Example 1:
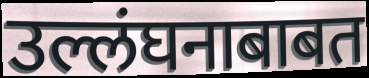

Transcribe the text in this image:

उल्लंघनाबाबत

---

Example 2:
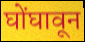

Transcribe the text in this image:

घोंघावून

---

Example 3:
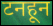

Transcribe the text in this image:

टनहून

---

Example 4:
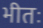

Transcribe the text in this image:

भीतः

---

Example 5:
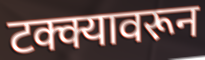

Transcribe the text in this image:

टक्क्यावरून